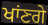
ਖਾਂਣਗੇ